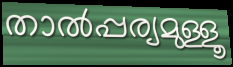
താൽപ്പര്യമുള്ളൂ